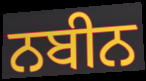
ਨਬੀਨ